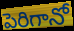
పెరిగానో